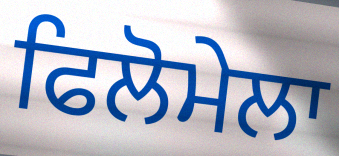
ਫਿਲੋਮੇਲਾ